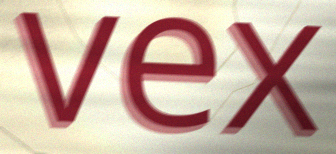
vex